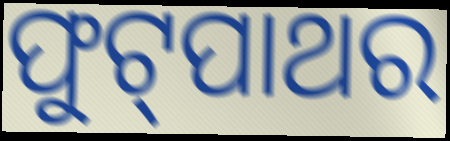
ଫୁଟ୍‌ପାଥର